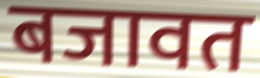
बजावत